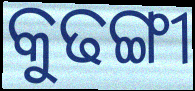
କୁଢଙ୍ଗୀ